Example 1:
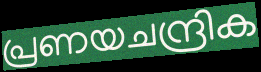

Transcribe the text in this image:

പ്രണയചന്ദ്രിക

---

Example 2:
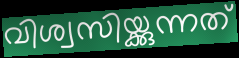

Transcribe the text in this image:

വിശ്വസിയ്ക്കുന്നത്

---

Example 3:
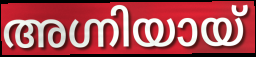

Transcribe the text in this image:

അഗ്നിയായ്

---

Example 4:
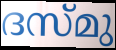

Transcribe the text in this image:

ദസ്മു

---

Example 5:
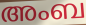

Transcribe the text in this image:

അംബ